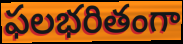
ఫలభరితంగా